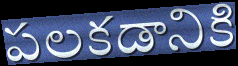
పలకడానికి